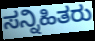
ಸನ್ನಿಹಿತರು